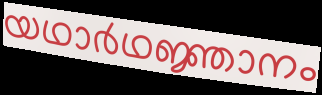
യഥാർഥജ്ഞാനം